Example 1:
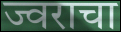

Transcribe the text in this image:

ज्वराचा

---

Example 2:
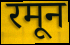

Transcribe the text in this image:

रमून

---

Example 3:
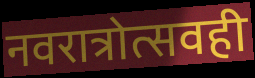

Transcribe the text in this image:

नवरात्रोत्सवही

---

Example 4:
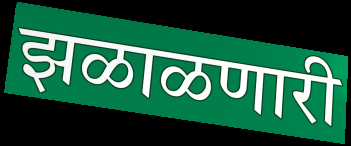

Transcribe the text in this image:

झळाळणारी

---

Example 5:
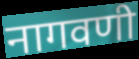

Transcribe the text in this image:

नागवणी